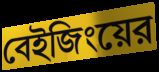
বেইজিংয়ের